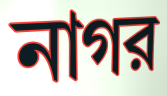
নাগর